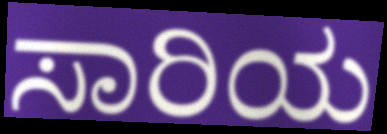
ಸಾರಿಯ